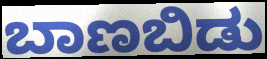
ಬಾಣಬಿಡು